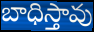
బాధిస్తావు